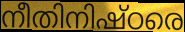
നീതിനിഷ്ഠരെ